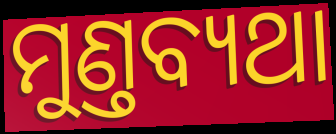
ମୁଣ୍ତବ୍ୟଥା